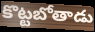
కొట్టబోతాడు